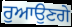
ਰੁਆਉਣਗੇ